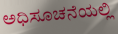
ಅಧಿಸೂಚನೆಯಲ್ಲಿ